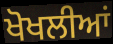
ਖੋਖਲੀਆਂ